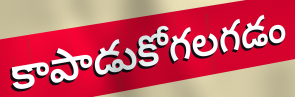
కాపాడుకోగలగడం